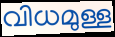
വിധമുള്ള